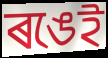
ৰঙেই